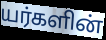
யர்களின்